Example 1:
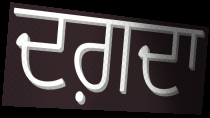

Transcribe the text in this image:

ਦਗ਼ਦਾ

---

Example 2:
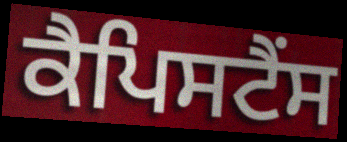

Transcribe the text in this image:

ਕੈਪਿਸਟੈਂਸ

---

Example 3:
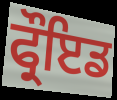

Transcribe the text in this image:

ਫ੍ਰੌਇਡ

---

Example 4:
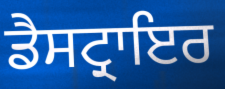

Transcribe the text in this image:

ਡੈਸਟ੍ਰਾਇਰ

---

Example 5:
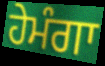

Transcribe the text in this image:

ਹੇਮੰਗਾ